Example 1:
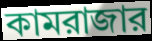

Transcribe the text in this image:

কামরাজার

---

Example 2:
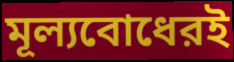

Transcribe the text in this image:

মূল্যবোধেরই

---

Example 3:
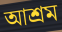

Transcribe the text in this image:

আশ্রম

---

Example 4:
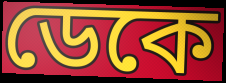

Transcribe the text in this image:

ডেকে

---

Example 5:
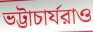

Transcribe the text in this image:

ভট্টাচার্যরাও